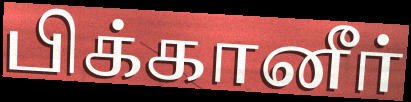
பிக்கானீர்